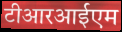
टीआरआईएम